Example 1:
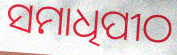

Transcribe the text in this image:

ସମାଧିପୀଠ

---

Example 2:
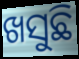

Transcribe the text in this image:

ଖସୁଛି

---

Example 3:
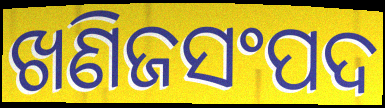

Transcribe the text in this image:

ଖଣିଜସଂପଦ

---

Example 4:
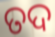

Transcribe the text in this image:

ତଦ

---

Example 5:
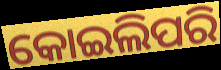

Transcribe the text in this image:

କୋଇଲିପରି